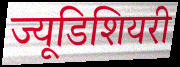
ज्यूडिशियरी